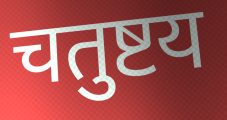
चतुष्टय